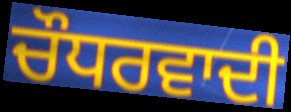
ਚੌਧਰਵਾਦੀ